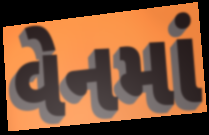
વેનમાં